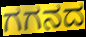
ಗಗನದ